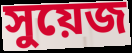
সুয়েজ